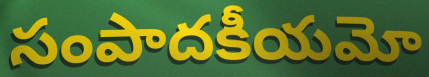
సంపాదకీయమో